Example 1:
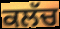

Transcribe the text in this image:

ਕਲੱਚ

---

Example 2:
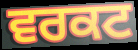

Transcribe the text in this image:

ਵਰਕਟ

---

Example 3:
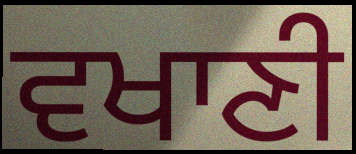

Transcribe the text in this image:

ਵਖਾਣੀ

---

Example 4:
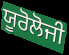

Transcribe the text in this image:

ਯੂਰੋਲੋਜੀ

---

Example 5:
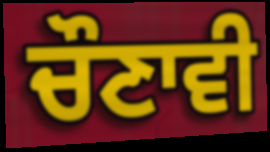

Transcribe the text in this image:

ਚੌਣਾਵੀ